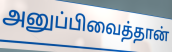
அனுப்பிவைத்தான்